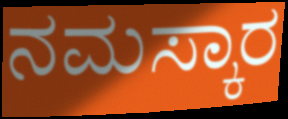
ನಮಸ್ಕಾರ